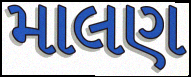
માલણ